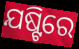
ଯଷ୍ଟିରେ